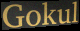
Gokul